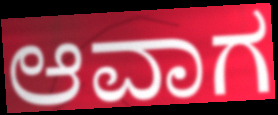
ಆವಾಗ